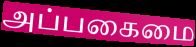
அப்பகைமை